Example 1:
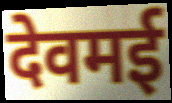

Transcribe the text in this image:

देवमई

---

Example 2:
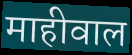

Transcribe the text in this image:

माहीवाल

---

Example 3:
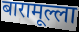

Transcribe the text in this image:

बारामूल्ला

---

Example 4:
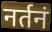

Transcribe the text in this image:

नर्तनं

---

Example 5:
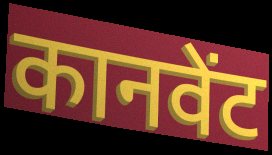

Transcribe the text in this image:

कानवेंट